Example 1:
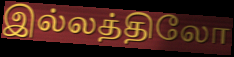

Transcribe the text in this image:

இல்லத்திலோ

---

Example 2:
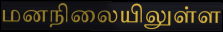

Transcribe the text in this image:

மனநிலையிலுள்ள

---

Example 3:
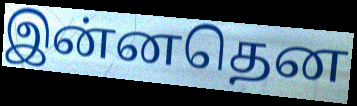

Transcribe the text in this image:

இன்னதென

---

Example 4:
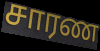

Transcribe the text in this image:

சாரண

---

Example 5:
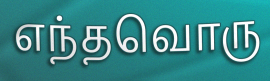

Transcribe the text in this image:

எந்தவொரு